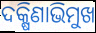
ଦକ୍ଷିଣାଭିମୁଖ